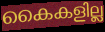
കൈകളില്ല